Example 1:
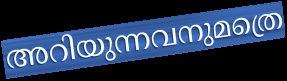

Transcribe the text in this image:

അറിയുന്നവനുമത്രെ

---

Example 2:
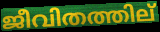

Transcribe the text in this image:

ജീവിതത്തില്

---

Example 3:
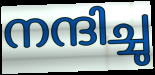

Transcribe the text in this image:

നന്ദിച്ചു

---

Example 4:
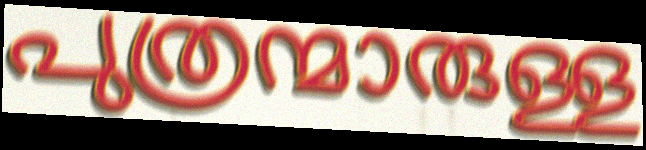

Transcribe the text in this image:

പുത്രന്മാരുള്ള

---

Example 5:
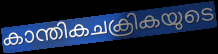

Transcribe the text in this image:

കാന്തികചക്രികയുടെ